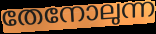
തേനോലുന്ന